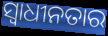
ସ୍ବାଧୀନତାର